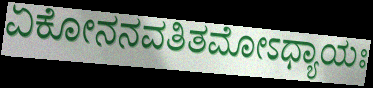
ಏಕೋನನವತಿತಮೋಽಧ್ಯಾಯಃ